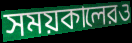
সময়কালেরও